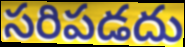
సరిపడదు